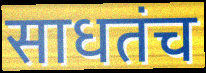
साधतंच